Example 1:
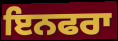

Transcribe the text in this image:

ਇਨਫਰਾ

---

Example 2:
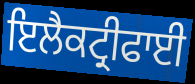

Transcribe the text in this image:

ਇਲੈਕਟ੍ਰੀਫਾਈ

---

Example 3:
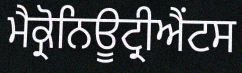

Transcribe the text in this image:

ਮੈਕ੍ਰੋਨਿਊਟ੍ਰੀਐਂਟਸ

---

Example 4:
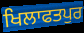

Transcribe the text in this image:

ਖਿਲਾਫਤਪੁਰ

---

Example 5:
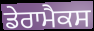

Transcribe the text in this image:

ਡੇਰਾਮੈਕਸ